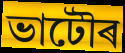
ভাটৌৰ